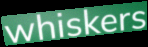
whiskers